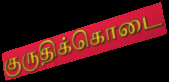
குருதிக்கொடை